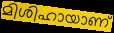
മിശിഹായാണ്